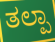
ತಲ್ಪಾ